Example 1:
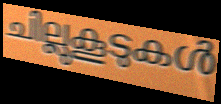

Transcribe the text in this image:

ചില്ലുകൂടുകൾ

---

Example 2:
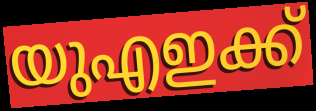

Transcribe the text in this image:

യുഎഇക്ക്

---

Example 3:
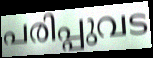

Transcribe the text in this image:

പരിപ്പുവട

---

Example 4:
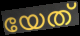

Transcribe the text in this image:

യേത്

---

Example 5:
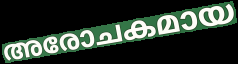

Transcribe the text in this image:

അരോചകമായ